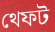
থেফট